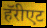
हॅरीएट